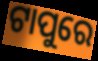
ଟାପୁରେ